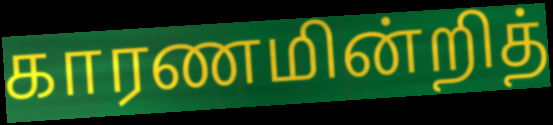
காரணமின்றித்